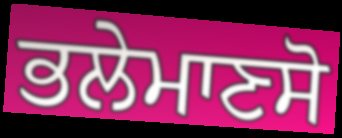
ਭਲੇਮਾਣਸੋ